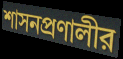
শাসনপ্রণালীর